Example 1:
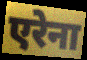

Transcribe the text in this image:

एरेना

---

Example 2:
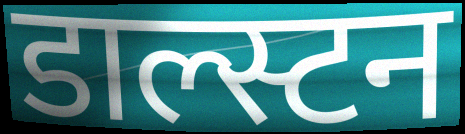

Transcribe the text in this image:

डाल्स्टन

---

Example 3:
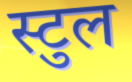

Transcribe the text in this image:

स्टुल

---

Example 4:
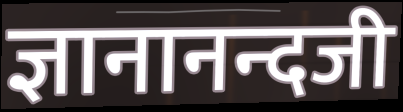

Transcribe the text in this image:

ज्ञानानन्दजी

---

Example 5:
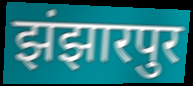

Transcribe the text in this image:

झंझारपुर